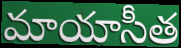
మాయాసీత